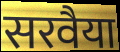
सरवैया